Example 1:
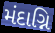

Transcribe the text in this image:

મંદાગ્નિ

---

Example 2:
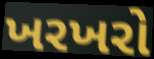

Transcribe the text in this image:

ખરખરો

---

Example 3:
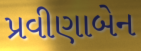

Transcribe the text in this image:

પ્રવીણાબેન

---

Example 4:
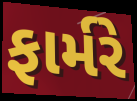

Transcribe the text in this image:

ફાર્મરે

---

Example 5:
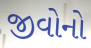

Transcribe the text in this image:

જીવોનો